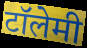
टॉलेमी